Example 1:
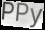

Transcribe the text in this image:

PPy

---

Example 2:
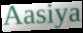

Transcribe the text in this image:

Aasiya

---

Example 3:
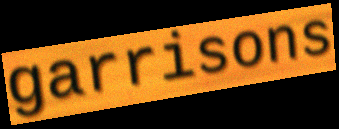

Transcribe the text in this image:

garrisons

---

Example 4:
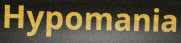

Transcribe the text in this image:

Hypomania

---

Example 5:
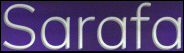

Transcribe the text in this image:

Sarafa